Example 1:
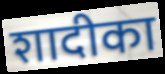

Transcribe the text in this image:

शादीका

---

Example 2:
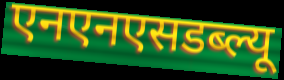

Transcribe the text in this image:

एनएनएसडब्ल्यू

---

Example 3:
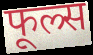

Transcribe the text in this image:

फूल्स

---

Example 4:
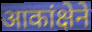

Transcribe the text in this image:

आकांक्षेने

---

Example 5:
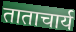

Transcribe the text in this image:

ताताचार्य